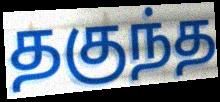
தகுந்த